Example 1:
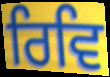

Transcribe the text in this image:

ਰਿਵਿ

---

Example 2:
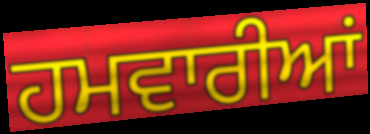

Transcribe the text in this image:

ਹਮਵਾਰੀਆਂ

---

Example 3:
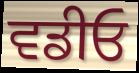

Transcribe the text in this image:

ਵਡੀਓ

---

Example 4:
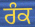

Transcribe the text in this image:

ਰੰਕ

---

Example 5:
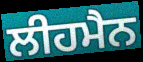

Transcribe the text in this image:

ਲੀਹਮੈਨ